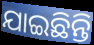
ଯାଇଛିନ୍ତି